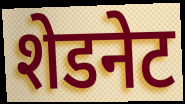
शेडनेट